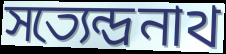
সত্যেন্দ্ৰনাথ